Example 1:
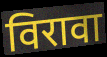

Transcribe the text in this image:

विरावा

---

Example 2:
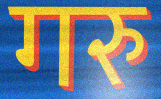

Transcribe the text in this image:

गरु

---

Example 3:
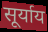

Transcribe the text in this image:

सूर्याय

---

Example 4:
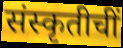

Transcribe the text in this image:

संस्कृतीचीं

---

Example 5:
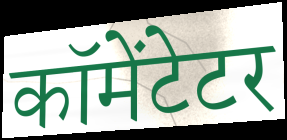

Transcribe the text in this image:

कॉमेंटेटर